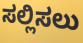
ಸಲ್ಲಿಸಲು